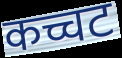
कच्चट